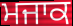
ਮਜਾਕ